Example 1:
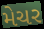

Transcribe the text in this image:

મેચર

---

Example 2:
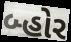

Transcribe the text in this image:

બ્હોર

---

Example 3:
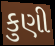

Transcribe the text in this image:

કુણી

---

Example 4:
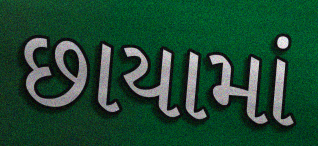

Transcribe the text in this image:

છાયામાં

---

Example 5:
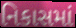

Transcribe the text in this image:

નિકાસમાં